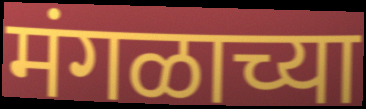
मंगळाच्या